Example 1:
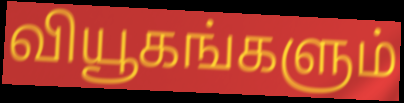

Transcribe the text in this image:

வியூகங்களும்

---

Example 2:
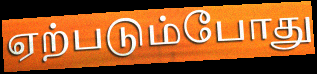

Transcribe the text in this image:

ஏற்படும்போது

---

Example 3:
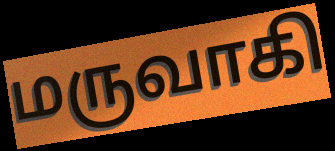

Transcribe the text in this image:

மருவாகி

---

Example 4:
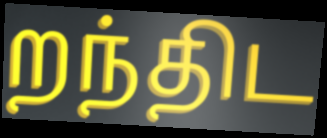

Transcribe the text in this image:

றந்திட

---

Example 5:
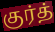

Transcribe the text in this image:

குர்த்